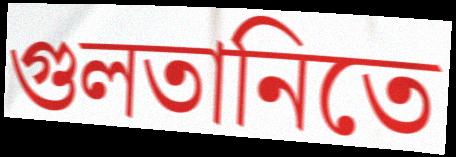
গুলতানিতে